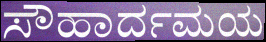
ಸೌಹಾರ್ದಮಯ